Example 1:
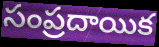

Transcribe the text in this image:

సంప్రదాయిక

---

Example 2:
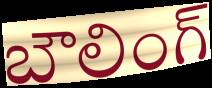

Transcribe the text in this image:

బౌలింగ్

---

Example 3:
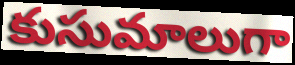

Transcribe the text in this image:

కుసుమాలుగా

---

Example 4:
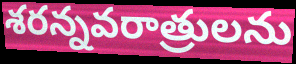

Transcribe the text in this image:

శరన్నవరాత్రులను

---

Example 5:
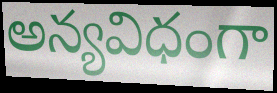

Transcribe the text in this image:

అన్యవిధంగా